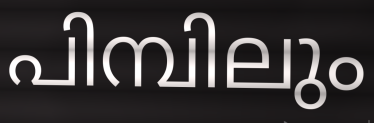
പിമ്പിലും